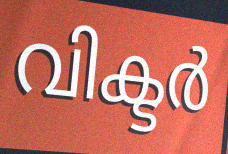
വിക്ടർ